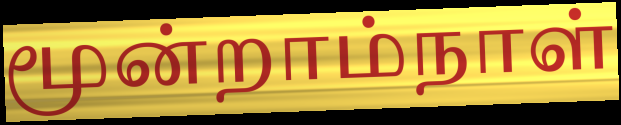
மூன்றாம்நாள்